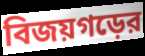
বিজয়গড়ের